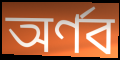
অর্ণব